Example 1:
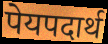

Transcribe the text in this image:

पेयपदार्थ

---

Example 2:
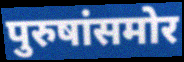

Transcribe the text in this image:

पुरुषांसमोर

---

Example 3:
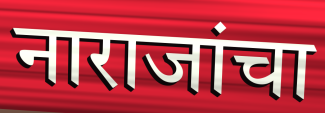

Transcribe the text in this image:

नाराजांचा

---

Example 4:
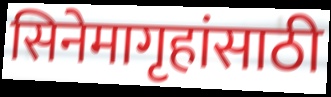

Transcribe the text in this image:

सिनेमागृहांसाठी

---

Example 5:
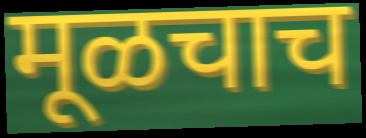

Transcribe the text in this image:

मूळचाच